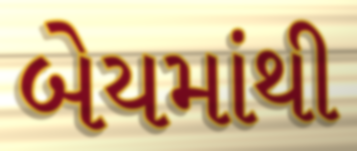
બેયમાંથી